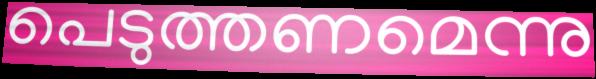
പെടുത്തണമെന്നു